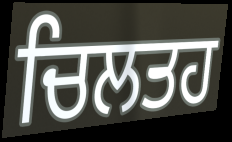
ਚਿਲਤਹ